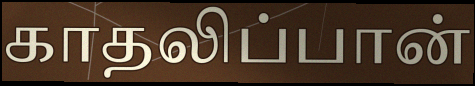
காதலிப்பான்